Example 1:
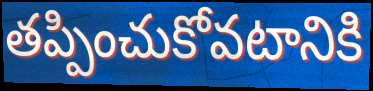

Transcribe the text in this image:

తప్పించుకోవటానికి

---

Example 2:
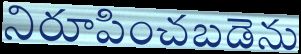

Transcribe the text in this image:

నిరూపించబడెను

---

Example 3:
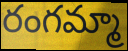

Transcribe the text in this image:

రంగమ్మా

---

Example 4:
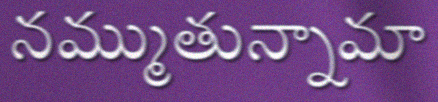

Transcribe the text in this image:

నమ్ముతున్నామా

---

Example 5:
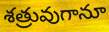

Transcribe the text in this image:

శత్రువుగానూ